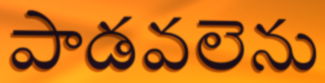
పాడవలెను